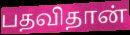
பதவிதான்